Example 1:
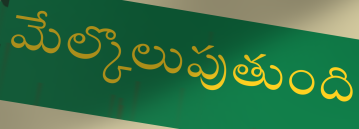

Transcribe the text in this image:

మేల్కొలుపుతుంది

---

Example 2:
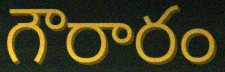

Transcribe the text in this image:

గౌరారం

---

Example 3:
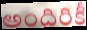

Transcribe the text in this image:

అందిరికీ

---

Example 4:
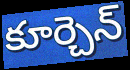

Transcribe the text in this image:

కూర్చెన్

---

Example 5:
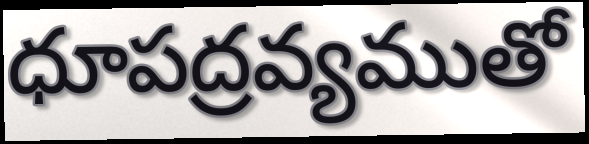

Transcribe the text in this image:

ధూపద్రవ్యముతో